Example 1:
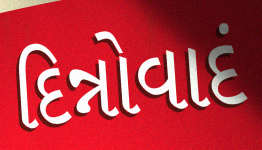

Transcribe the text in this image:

દિન્નોવાદં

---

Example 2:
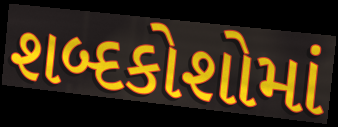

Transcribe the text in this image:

શબ્દકોશોમાં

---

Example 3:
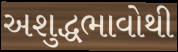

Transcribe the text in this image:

અશુદ્ધભાવોથી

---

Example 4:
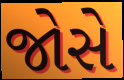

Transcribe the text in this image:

જોસે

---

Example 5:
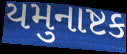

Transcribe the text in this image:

યમુનાષ્ટક